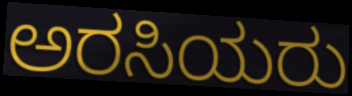
ಅರಸಿಯರು